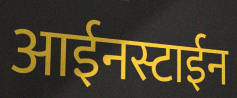
आईनस्टाईन